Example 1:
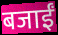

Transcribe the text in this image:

बजाईं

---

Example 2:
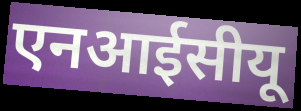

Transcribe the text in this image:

एनआईसीयू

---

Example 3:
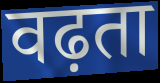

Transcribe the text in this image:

वढ़ता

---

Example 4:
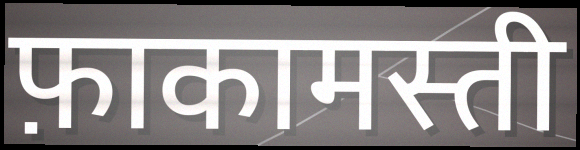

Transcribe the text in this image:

फ़ाकामस्ती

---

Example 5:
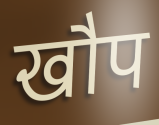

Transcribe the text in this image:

खौप